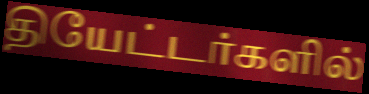
தியேட்டர்களில்